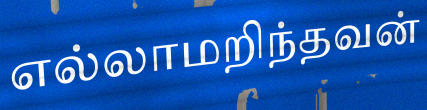
எல்லாமறிந்தவன்